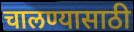
चालण्यासाठी